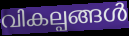
വികല്പങ്ങൾ